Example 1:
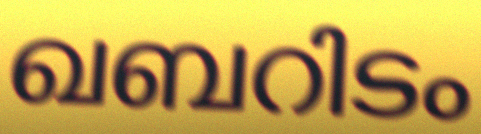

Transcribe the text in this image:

ഖബറിടം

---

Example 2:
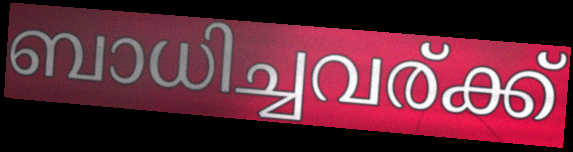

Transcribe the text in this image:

ബാധിച്ചവര്ക്ക്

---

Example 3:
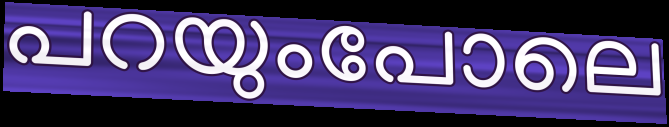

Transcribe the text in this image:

പറയുംപോലെ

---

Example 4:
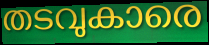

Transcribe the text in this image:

തടവുകാരെ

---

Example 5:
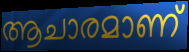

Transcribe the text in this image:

ആചാരമാണ്